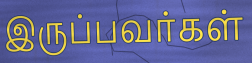
இருப்பவர்கள்